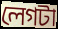
লেগটা